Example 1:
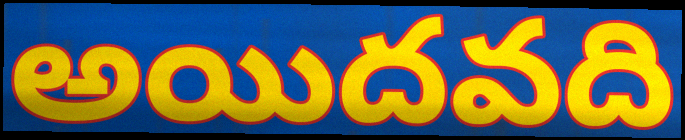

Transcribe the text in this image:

అయిదవది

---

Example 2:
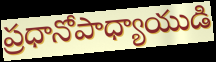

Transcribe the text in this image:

ప్రధానోపాధ్యాయుడి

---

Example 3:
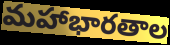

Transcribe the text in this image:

మహాభారతాల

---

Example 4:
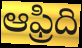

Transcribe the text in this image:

ఆఫ్రిది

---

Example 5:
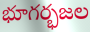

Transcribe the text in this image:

భూగర్భజల